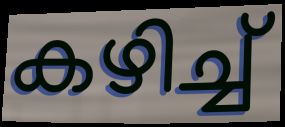
കഴിച്ച്